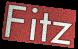
Fitz